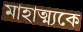
মাহাত্ম্যকে